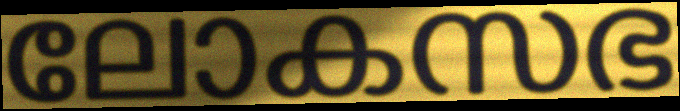
ലോകസഭ